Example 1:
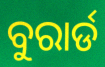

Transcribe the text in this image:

ବୁରାର୍ଡ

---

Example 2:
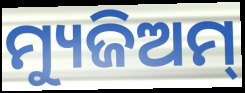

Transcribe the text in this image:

ମ୍ୟୁଜିଅମ୍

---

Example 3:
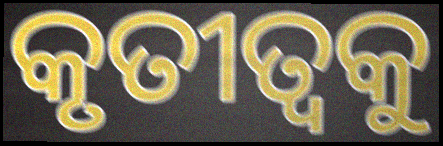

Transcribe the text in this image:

କୃତୀତ୍ଵକୁ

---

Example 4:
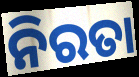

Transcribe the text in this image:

ନିରତା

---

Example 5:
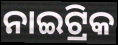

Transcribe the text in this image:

ନାଇଟ୍ରିକ